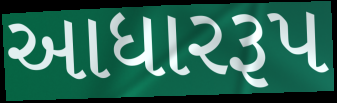
આધારરૂપ